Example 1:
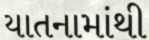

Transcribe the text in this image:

યાતનામાંથી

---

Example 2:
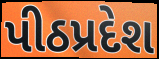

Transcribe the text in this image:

પીઠપ્રદેશ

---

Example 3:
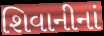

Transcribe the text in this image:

શિવાનીનાં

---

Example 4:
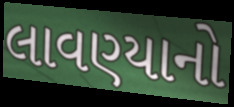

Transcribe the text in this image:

લાવણ્યાનો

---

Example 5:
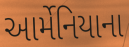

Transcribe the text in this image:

આર્મેનિયાના